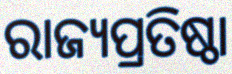
ରାଜ୍ୟପ୍ରତିଷ୍ଠା